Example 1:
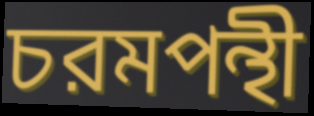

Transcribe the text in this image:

চরমপন্থী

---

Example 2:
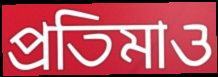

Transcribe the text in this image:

প্রতিমাও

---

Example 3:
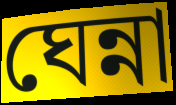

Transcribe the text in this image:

ঘেন্না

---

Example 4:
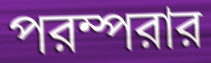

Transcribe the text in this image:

পরম্পরার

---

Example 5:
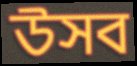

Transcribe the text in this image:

উসব